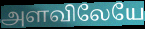
அளவிலேயே